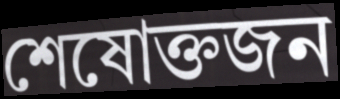
শেষোক্তজন